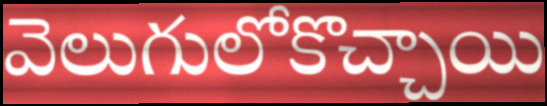
వెలుగులోకొచ్చాయి